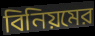
বিনিয়মের